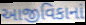
આજીવિકાનાં